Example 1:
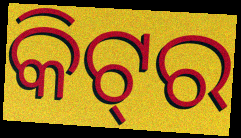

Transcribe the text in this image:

କିଟ୍‌ର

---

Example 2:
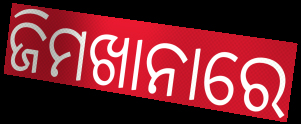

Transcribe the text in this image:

ଜିମଖାନାରେ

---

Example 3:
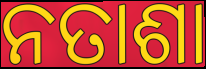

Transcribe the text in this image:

ନତାଶା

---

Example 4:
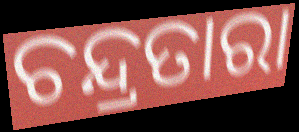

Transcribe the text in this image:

ଚନ୍ଦ୍ରତାରା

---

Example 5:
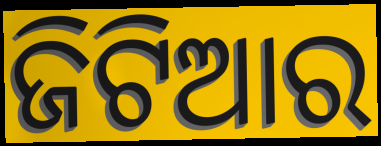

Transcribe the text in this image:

ଜିଟିଆର